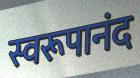
स्‍वरूपानंद